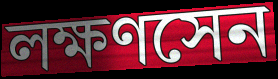
লক্ষণসেন